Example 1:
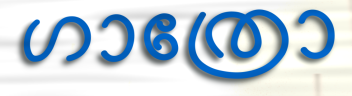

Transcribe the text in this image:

ഗാത്രോ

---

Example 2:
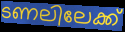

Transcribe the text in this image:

ടണലിലേക്ക്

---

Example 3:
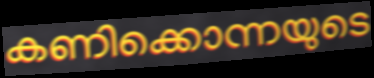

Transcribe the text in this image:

കണിക്കൊന്നയുടെ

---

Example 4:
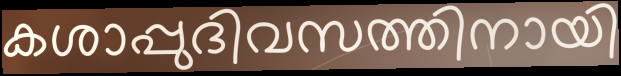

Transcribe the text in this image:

കശാപ്പുദിവസത്തിനായി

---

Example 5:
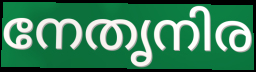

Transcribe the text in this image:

നേതൃനിര